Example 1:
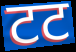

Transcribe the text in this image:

टट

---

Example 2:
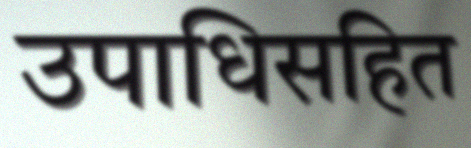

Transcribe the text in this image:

उपाधिसहित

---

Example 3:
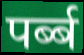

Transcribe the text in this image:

पर्ब्ब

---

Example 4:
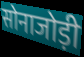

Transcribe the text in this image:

सोनाजोड़ी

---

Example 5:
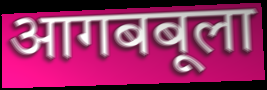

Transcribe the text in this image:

आगबबूला